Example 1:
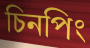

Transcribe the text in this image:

চিনপিং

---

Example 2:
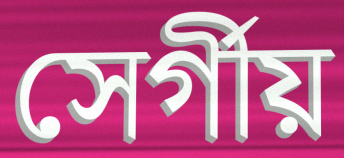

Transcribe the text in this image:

সের্গীয়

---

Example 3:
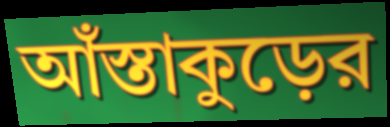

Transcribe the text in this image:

আঁস্তাকুড়ের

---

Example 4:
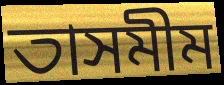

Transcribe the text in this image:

তাসমীম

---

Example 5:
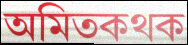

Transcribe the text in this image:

অমিতকথক